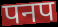
पनप